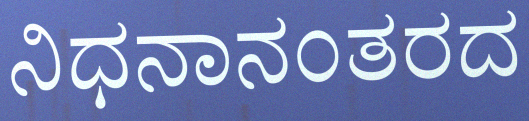
ನಿಧನಾನಂತರದ